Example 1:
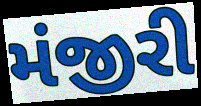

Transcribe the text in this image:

મંજીરી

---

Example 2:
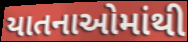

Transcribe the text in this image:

યાતનાઓમાંથી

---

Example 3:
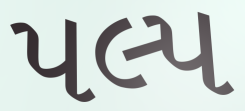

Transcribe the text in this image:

પલ્પ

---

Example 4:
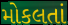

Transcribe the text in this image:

મોકલતાં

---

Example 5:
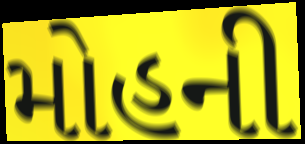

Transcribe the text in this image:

મોહની